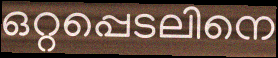
ഒറ്റപ്പെടലിനെ